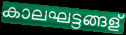
കാലഘട്ടങ്ങള്